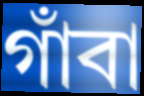
গাঁবা